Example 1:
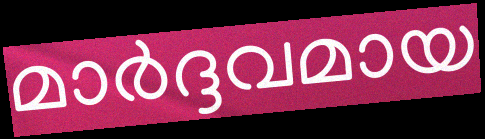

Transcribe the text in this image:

മാർദ്ദവമായ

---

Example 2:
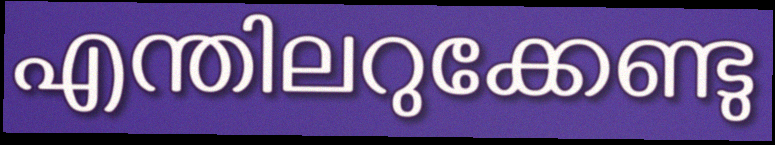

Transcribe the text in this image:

എന്തിലറുക്കേണ്ടു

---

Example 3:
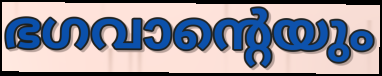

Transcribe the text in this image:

ഭഗവാന്റെയും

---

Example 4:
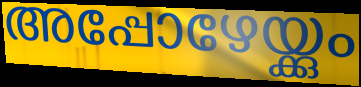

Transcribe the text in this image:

അപ്പോഴേയ്ക്കും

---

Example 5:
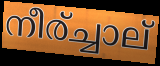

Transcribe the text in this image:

നീര്ച്ചാല്